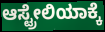
ಆಸ್ಟ್ರೇಲಿಯಾಕ್ಕೆ